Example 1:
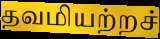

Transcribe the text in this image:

தவமியற்றச்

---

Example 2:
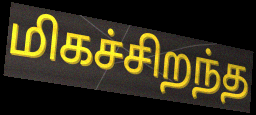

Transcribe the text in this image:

மிகச்சிறந்த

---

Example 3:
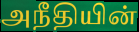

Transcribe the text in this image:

அநீதியின்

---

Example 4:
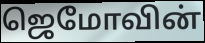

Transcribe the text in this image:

ஜெமோவின்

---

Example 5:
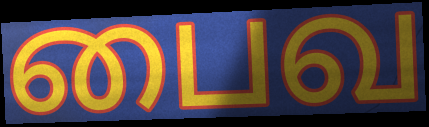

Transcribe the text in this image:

பைவ